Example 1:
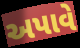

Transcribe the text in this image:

અપાવે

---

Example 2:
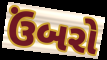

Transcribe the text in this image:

ઉંબરો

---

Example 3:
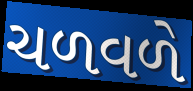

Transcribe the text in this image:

ચળવળે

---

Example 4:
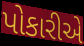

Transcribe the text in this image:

પોકારીએ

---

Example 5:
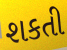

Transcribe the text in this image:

શકતી